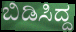
ಬಿಡಿಸಿದ್ದ